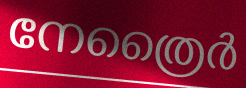
നേത്രൈർ